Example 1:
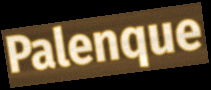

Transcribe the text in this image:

Palenque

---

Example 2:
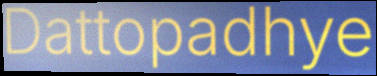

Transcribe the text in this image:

Dattopadhye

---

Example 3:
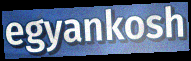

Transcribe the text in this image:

egyankosh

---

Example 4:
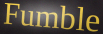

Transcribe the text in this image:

Fumble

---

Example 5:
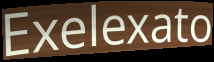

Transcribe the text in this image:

Exelexato